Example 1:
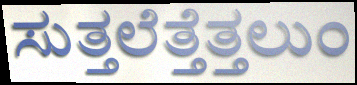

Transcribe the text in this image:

ಸುತ್ತಲೆತ್ತೆತ್ತಲುಂ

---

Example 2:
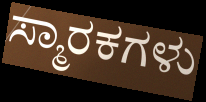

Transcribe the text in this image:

ಸ್ಮಾರಕಗಳು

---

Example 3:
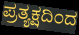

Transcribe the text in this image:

ಪ್ರತ್ಯಕ್ಷದಿಂದ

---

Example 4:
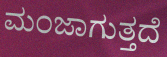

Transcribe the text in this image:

ಮಂಜಾಗುತ್ತದೆ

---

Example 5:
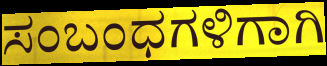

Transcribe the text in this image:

ಸಂಬಂಧಗಳಿಗಾಗಿ